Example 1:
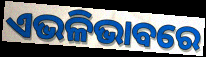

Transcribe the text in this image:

ଏଭଳିଭାବରେ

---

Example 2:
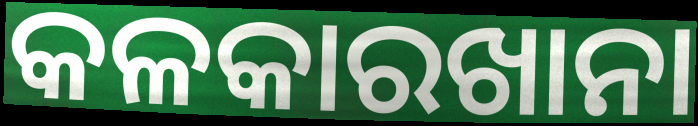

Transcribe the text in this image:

କଳକାରଖାନା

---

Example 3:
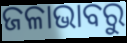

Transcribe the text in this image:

ଜଳାଭାବରୁ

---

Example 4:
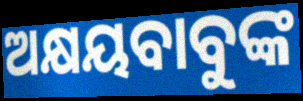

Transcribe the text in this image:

ଅକ୍ଷୟବାବୁଙ୍କ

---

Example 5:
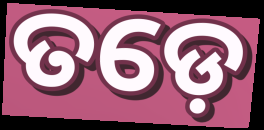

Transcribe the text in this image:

ତଡ଼େ